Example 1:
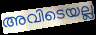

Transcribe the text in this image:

അവിടെയല്ല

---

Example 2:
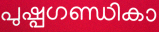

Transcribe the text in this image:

പുഷ്പഗണ്ഡികാ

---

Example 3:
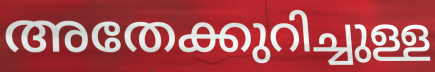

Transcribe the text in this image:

അതേക്കുറിച്ചുള്ള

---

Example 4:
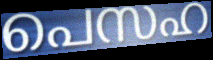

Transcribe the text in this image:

പെസഹ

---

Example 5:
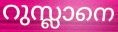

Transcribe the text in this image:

റുസ്ലാനെ